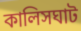
কালিসঘাট